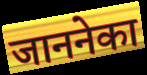
जाननेका